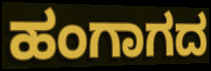
ಹಂಗಾಗದ